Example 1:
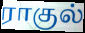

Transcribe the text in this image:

ராகுல்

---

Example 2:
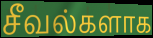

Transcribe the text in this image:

சீவல்களாக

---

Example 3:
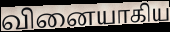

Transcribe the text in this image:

வினையாகிய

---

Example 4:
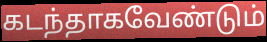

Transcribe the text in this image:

கடந்தாகவேண்டும்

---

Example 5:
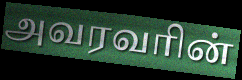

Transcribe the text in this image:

அவரவரின்